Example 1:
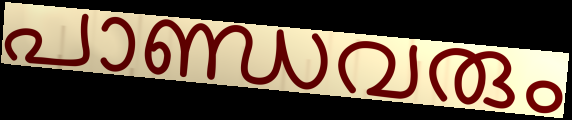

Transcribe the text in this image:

പാണ്ഡവരും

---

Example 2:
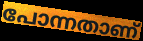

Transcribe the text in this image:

പോന്നതാണ്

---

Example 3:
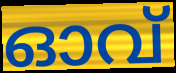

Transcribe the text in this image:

ഓവ്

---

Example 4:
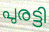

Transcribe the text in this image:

പുരട്ടി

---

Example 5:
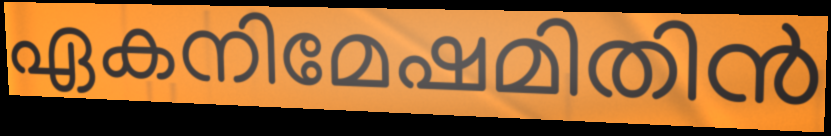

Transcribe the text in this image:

ഏകനിമേഷമിതിൻ